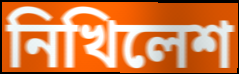
নিখিলেশ